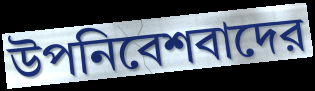
উপনিবেশবাদের